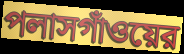
পলাসগাঁওয়ের